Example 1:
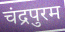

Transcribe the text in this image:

चंद्रपुरम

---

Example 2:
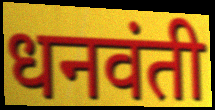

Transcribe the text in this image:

धनवंती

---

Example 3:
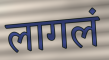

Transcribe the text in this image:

लागलं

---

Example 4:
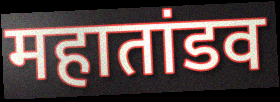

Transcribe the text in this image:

महातांडव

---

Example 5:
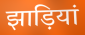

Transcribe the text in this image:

झाड़ियां